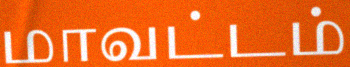
மாவட்டம்